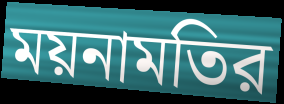
ময়নামতির